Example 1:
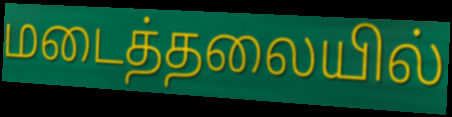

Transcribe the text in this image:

மடைத்தலையில்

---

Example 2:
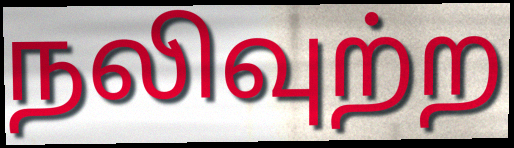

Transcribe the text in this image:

நலிவுற்ற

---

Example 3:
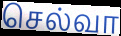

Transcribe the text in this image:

செல்வா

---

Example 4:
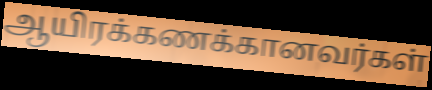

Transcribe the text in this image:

ஆயிரக்கணக்கானவர்கள்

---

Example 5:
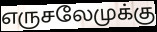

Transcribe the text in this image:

எருசலேமுக்கு